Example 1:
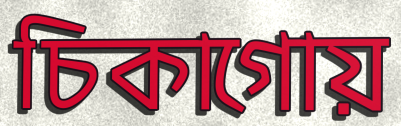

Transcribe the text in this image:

চিকাগোয়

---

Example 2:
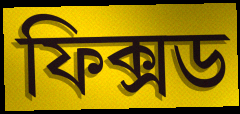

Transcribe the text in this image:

ফিক্সড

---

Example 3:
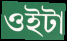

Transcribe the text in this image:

ওইটা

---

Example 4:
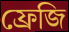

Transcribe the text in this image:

ফ্রেজি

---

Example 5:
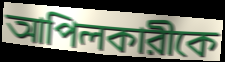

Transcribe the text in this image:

আপিলকারীকে